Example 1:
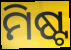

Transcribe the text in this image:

ମିଷ୍ଟ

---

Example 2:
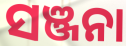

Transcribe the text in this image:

ସଞ୍ଜନା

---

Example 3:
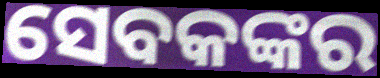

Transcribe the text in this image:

ସେବକଙ୍କର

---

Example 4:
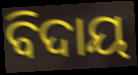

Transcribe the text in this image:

ବିଦାୟ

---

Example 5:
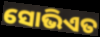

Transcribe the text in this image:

ସୋଭିଏତ